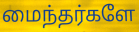
மைந்தர்களே